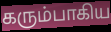
கரும்பாகிய